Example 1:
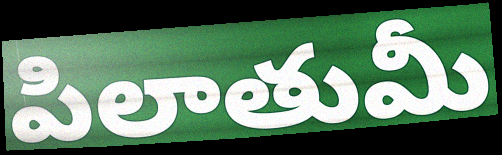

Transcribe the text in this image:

పిలాతుమీ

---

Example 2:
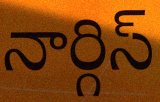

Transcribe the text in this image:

నార్గిస్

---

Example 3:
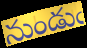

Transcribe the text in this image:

నుండుఁ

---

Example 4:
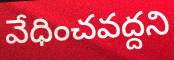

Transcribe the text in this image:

వేధించవద్దని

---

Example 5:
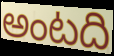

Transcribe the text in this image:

అంటది